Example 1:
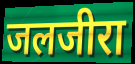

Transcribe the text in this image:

जलजीरा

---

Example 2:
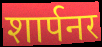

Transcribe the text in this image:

शार्पनर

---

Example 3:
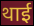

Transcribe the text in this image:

थाई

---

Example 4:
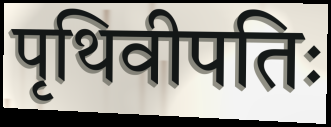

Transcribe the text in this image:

पृथिवीपतिः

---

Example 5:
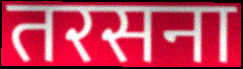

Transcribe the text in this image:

तरसना